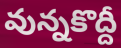
వున్నకొద్దీ